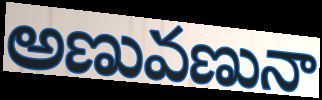
అణువణునా